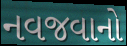
નવજવાનો